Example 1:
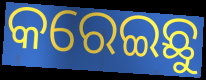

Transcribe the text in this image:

କରେଇଛୁ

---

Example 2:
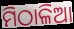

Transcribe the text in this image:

ମିଠାଳିଆ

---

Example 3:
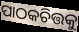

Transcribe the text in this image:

ପାଠକଚିତ୍ତକୁ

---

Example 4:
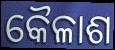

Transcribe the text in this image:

କୈଳାଶ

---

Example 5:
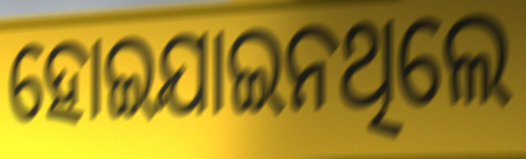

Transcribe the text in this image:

ହୋଇଯାଇନଥିଲେ